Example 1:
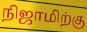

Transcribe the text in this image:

நிஜாமிற்கு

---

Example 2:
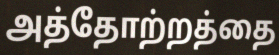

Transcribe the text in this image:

அத்தோற்றத்தை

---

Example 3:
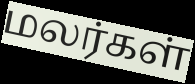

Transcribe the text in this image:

மலர்கள்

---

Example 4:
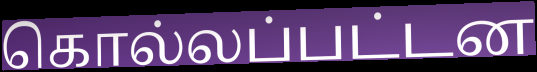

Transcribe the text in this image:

கொல்லப்பட்டன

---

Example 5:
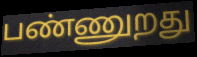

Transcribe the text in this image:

பண்ணுறது